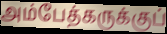
அம்பேத்கருக்குப்